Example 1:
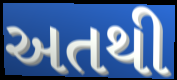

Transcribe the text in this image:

અતથી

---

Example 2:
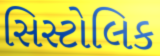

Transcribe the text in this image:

સિસ્ટોલિક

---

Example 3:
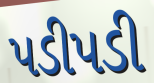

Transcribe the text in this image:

પડીપડી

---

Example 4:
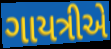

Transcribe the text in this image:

ગાયત્રીએ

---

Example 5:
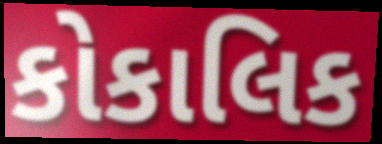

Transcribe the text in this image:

કોકાલિક